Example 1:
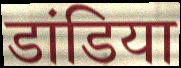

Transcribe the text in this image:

डांडिया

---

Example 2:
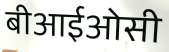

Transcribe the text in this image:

बीआईओसी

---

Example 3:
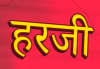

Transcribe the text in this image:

हरजी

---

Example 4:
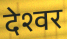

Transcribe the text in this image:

देश्वर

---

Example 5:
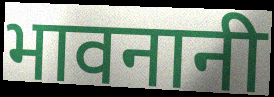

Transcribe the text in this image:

भावनानी